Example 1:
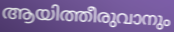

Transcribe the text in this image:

ആയിത്തീരുവാനും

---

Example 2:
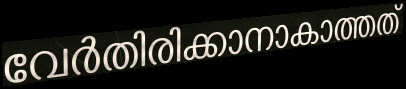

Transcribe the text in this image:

വേർതിരിക്കാനാകാത്തത്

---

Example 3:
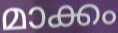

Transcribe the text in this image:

മാക്കം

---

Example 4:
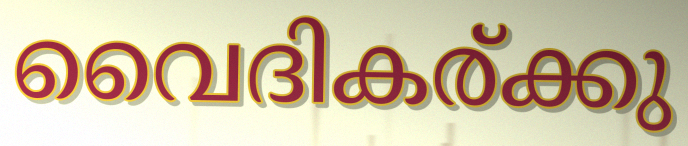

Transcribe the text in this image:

വൈദികര്ക്കു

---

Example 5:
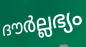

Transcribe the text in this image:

ദൗർല്ലഭ്യം